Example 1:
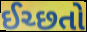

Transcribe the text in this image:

ઈચ્છતો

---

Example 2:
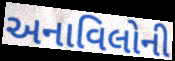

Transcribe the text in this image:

અનાવિલોની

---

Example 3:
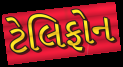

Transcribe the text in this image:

ટેલિફોન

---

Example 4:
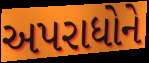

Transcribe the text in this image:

અપરાધોને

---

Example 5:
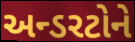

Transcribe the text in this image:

અન્ડરટોને